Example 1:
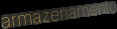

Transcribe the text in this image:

armazenamento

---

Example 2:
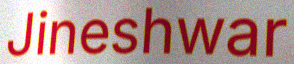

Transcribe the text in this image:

Jineshwar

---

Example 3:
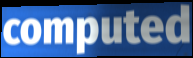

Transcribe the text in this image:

computed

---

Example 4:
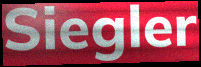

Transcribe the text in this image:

Siegler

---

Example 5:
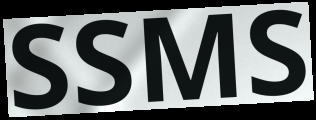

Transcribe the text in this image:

SSMS